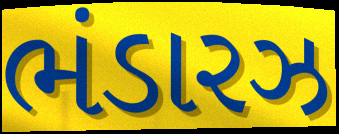
ભંડારઝ